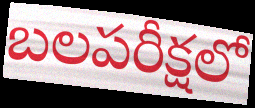
బలపరీక్షలో